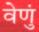
वेणुं